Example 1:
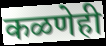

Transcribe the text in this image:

कळणेही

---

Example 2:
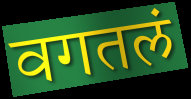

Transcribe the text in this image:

वगतलं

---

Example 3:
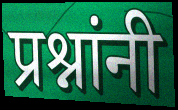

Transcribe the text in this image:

प्रश्नांनी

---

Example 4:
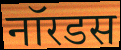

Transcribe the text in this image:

नॉरडस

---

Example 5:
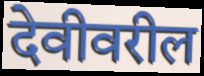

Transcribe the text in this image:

देवीवरील